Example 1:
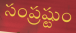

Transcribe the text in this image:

సంప్రష్టుం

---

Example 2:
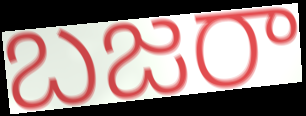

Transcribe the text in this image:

బజరా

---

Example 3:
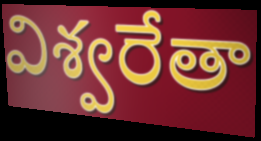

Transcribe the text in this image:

విశ్వరేతా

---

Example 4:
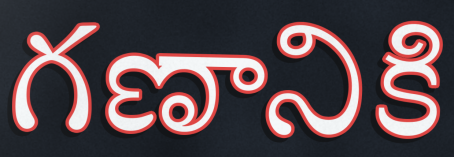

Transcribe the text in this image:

గణానికి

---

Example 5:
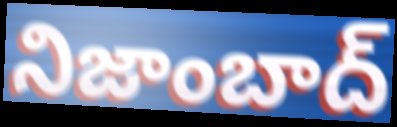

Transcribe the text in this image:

నిజాంబాద్